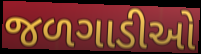
જળગાડીઓ